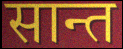
सान्त